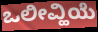
ಒಲೀವ್ಹಿಯೆ